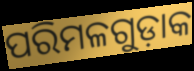
ପରିମଳଗୁଡ଼ାକ